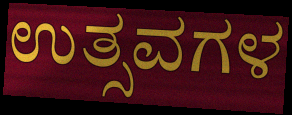
ಉತ್ಸವಗಳ